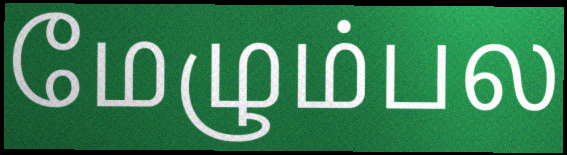
மேழும்பல